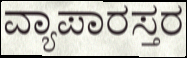
ವ್ಯಾಪಾರಸ್ತರ